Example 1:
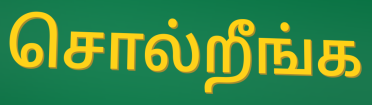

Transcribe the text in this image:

சொல்றீங்க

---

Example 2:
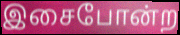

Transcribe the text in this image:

இசைபோன்ற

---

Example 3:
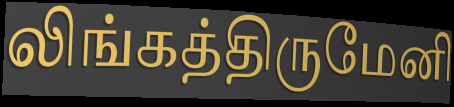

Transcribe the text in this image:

லிங்கத்திருமேனி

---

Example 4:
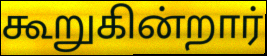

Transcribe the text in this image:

கூறுகின்றார்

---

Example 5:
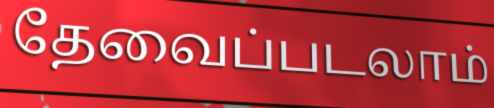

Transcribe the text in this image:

தேவைப்படலாம்